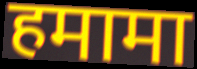
हमामा